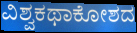
ವಿಶ್ವಕಥಾಕೋಶದ